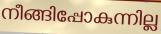
നീങ്ങിപ്പോകുന്നില്ല